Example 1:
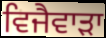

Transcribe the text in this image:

ਵਿਜੈਵਾੜਾ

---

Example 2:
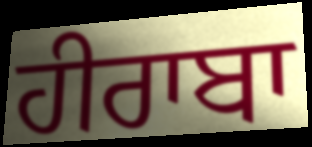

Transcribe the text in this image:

ਹੀਰਾਬਾ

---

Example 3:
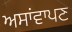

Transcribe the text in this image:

ਅਸਾਂਵਾਪਣ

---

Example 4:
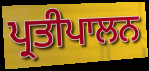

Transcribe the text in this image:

ਪ੍ਰਤੀਪਾਲਨ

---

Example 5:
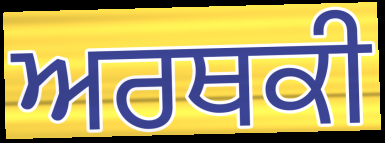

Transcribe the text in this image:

ਅਰਥਕੀ